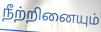
நீற்றினையும்